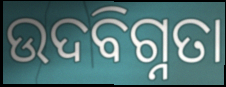
ଉଦବିଗ୍ନତା